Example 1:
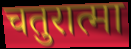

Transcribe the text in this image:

चतुरात्मा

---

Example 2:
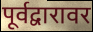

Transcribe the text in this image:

पूर्वद्वारावर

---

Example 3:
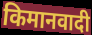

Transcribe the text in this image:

किमानवादी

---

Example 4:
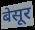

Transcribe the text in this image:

बेसूर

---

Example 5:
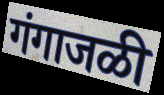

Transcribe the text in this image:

गंगाजळी